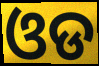
ଓଡ